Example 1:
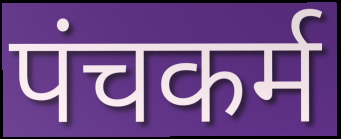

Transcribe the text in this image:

पंचकर्म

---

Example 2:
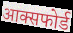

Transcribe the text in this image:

आक्सफोर्ड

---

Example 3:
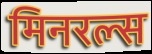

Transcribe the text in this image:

मिनरल्स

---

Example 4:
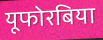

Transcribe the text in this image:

यूफोरबिया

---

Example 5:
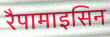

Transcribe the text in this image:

रैपामाइसिन